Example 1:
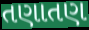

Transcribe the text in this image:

તણાતણ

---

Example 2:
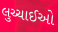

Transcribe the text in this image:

લુચ્ચાઈઓ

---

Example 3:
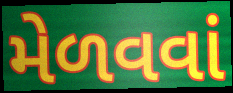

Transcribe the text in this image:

મેળવવાં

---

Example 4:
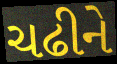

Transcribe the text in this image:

ચઢીને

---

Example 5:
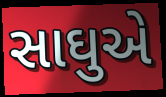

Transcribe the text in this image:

સાઘુએ